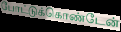
போட்டுக்கொண்டேன்